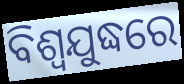
ବିଶ୍ବଯୁଦ୍ଧରେ